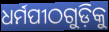
ଧର୍ମପୀଠଗୁଡ଼ିକୁ